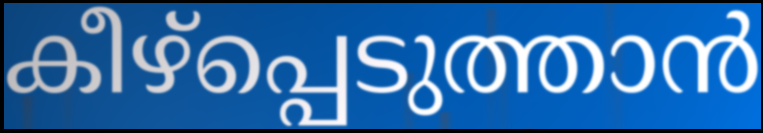
കീഴ്പ്പെടുത്താൻ